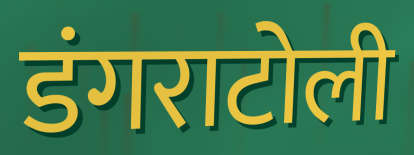
डंगराटोली